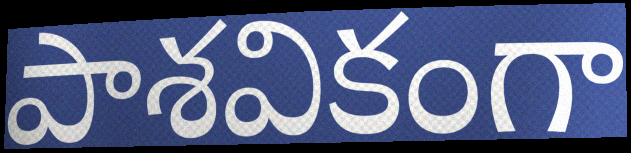
పాశవికంగా